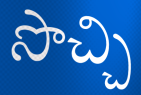
సొచ్చి